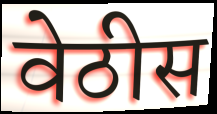
वेठीस